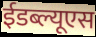
ईडब्ल्यूएस